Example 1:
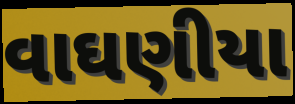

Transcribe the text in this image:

વાઘણીયા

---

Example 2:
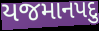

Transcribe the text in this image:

યજમાનપદુ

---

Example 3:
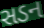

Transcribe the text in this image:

સડન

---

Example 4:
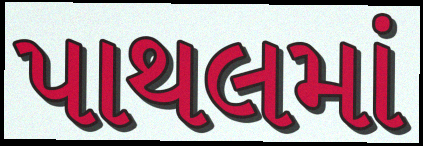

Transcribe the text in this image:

પાથલમાં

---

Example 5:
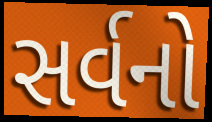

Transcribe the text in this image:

સર્વનો